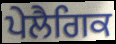
ਪੇਲੈਗਿਕ